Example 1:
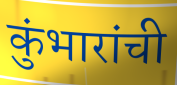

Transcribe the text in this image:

कुंभारांची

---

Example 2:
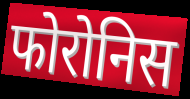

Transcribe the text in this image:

फोरोनिस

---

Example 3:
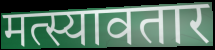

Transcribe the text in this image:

मत्स्यावतार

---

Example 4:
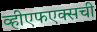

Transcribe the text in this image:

व्हीएफएक्सची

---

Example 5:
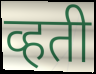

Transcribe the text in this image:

व्हती